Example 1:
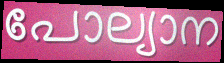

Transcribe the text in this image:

പോല്യാന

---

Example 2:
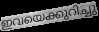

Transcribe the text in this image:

ഇവയെക്കുറിച്ചു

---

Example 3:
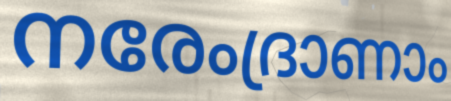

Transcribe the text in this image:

നരേംദ്രാണാം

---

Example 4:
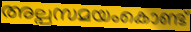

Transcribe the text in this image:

അല്പസമയംകൊണ്ട്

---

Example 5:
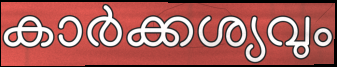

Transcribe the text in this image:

കാർക്കശ്യവും